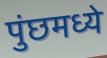
पुंछमध्ये